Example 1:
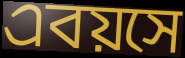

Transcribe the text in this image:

এবয়সে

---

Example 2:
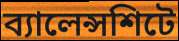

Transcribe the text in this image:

ব্যালেন্সশিটে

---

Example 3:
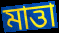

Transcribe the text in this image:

মাত্তা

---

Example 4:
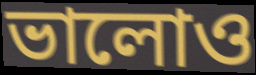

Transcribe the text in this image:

ভালোও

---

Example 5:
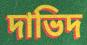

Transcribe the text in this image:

দাভিদ